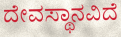
ದೇವಸ್ಥಾನವಿದೆ